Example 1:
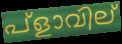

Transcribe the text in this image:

പ്ളാവില്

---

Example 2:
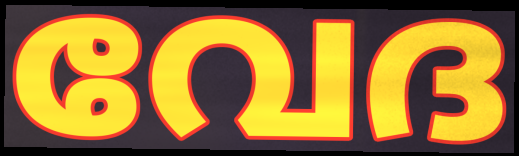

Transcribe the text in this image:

വേദ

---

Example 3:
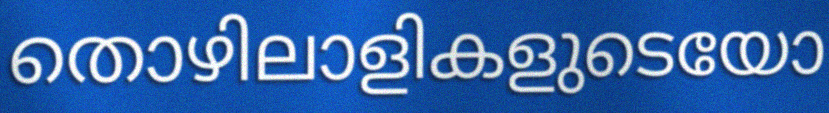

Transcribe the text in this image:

തൊഴിലാളികളുടെയോ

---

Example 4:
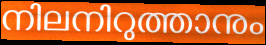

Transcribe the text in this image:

നിലനിറുത്താനും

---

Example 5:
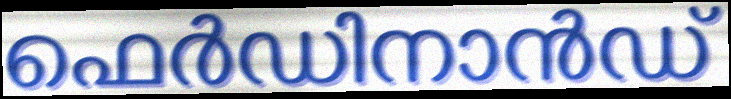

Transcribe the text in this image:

ഫെർഡിനാൻഡ്